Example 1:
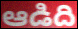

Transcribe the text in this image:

ఆడిది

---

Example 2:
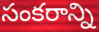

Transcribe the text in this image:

సంకరాన్ని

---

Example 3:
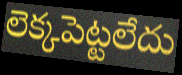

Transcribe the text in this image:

లెక్కపెట్టలేదు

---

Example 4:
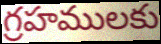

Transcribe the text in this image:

గ్రహములకు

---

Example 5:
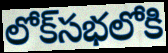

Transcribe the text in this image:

లోక్‌సభలోకి